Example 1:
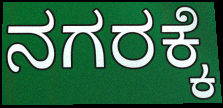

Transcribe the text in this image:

ನಗರಕ್ಕೆ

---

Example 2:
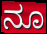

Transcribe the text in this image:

ನೂ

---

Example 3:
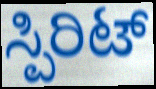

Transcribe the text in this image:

ಸ್ಪಿರಿಟ್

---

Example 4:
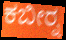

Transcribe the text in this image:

ಕಬೀರ್‍ನ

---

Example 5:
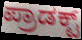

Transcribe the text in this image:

ಪ್ರಾಡಕ್ಟ್